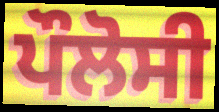
ਪੌਲੋਸੀ